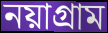
নয়াগ্রাম